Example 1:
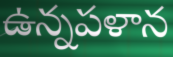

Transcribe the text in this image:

ఉన్నపళాన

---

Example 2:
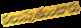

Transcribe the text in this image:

కలుపుతుంటారు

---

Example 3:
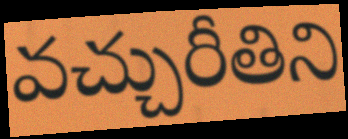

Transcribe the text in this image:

వచ్చురీతిని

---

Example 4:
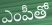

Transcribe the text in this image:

ఎంపీతో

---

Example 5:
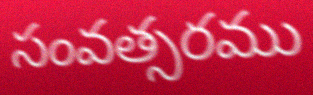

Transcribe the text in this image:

సంవత్సరము